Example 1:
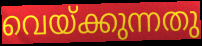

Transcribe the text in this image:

വെയ്ക്കുന്നതു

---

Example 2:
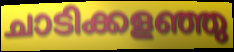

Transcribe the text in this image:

ചാടിക്കളഞ്ഞു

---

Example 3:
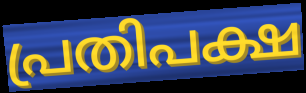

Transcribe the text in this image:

പ്രതിപക്ഷ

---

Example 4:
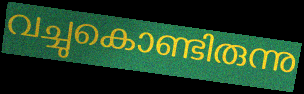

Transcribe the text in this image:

വച്ചുകൊണ്ടിരുന്നു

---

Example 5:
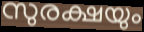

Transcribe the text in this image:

സുരക്ഷയും